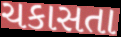
ચકાસતા